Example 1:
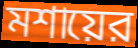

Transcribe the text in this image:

মশায়ের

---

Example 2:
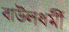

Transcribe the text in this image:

বাউলধর্মী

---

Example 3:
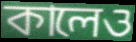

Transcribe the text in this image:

কালেও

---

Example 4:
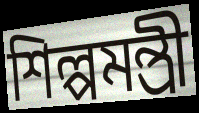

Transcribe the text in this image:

শিল্পমন্ত্রী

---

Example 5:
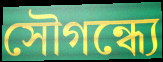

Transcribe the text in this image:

সৌগন্ধ্যে